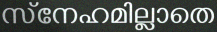
സ്‌നേഹമില്ലാതെ